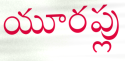
యూరప్లు